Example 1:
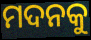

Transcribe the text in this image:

ମଦନକୁ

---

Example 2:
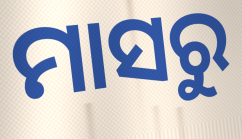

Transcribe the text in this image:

ମାସରୁ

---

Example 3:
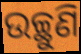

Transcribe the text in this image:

ଉଚ୍ଛୁଣି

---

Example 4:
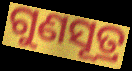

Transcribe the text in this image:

ଗୁଣସୂତ୍ର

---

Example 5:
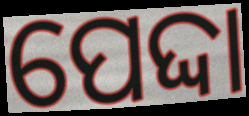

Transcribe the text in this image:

ପେଦ୍ଦା